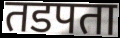
तडपता